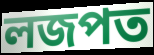
লজপত